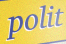
polit